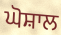
ਘੋਸ਼ਾਲ